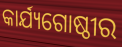
କାର୍ଯ୍ୟଗୋଷ୍ଠୀର